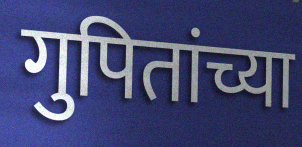
गुपितांच्या